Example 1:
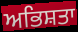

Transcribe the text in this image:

ਅਭਿਸ਼ਤਾ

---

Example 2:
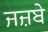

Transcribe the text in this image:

ਜਜ਼ਬੇ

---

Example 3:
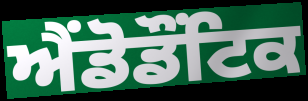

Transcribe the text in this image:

ਐਂਡੋਡੌਂਟਿਕ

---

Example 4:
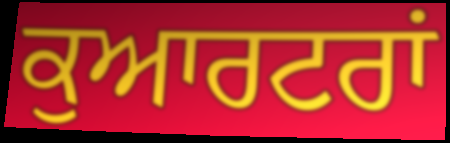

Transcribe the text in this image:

ਕੁਆਰਟਰਾਂ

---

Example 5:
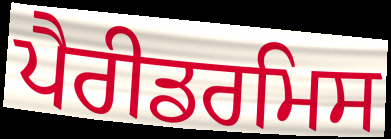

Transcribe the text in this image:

ਪੈਰੀਡਰਮਿਸ